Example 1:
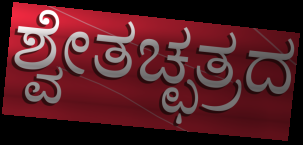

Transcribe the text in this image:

ಶ್ವೇತಚ್ಛತ್ರದ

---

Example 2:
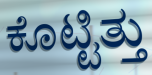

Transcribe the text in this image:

ಕೊಟ್ಟಿತ್ತು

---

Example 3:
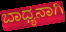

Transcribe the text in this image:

ಬಾಧ್ಯನಾಗಿ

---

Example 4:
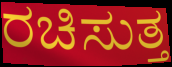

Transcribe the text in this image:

ರಚಿಸುತ್ತ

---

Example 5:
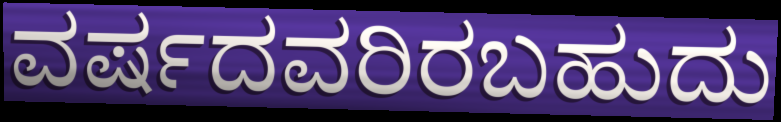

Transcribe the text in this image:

ವರ್ಷದವರಿರಬಹುದು